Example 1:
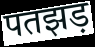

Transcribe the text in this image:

पतझड़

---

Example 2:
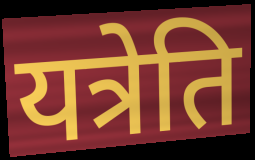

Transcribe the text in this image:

यत्रेति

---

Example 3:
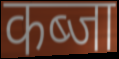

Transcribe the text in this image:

कब्जा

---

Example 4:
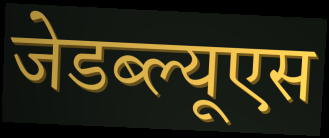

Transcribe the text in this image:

जेडब्ल्यूएस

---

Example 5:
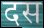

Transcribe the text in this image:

दस